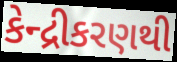
કેન્દ્રીકરણથી